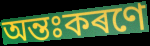
অন্তঃকৰণে